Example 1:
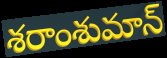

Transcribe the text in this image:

శరాంశుమాన్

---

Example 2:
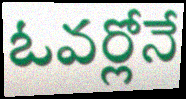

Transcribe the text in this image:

ఓవర్లోనే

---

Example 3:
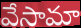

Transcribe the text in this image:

వేసామా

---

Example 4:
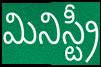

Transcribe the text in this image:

మినిస్ట్రీ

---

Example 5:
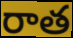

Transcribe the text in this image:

రాత